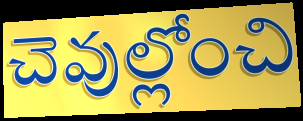
చెవుల్లోంచి